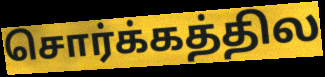
சொர்க்கத்தில